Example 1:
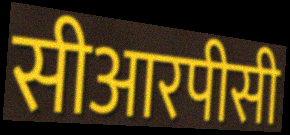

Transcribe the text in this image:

सीआरपीसी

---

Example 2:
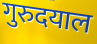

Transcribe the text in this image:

गुरुदयाल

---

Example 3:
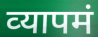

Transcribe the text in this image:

व्‍यापमं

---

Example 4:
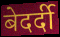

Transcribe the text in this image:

बेदर्दी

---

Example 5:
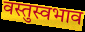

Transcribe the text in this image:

वस्तुस्वभाव